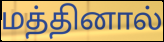
மத்தினால்